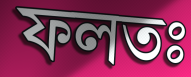
ফলতঃ